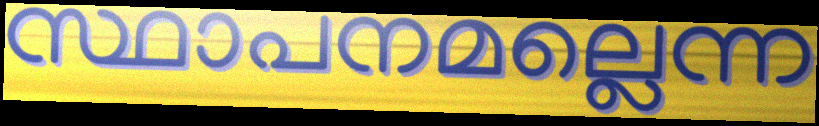
സ്ഥാപനമല്ലെന്ന